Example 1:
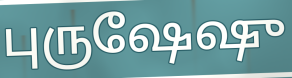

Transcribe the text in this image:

புருஷேஷு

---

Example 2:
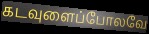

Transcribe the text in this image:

கடவுளைப்போலவே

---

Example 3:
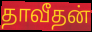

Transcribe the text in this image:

தாவீதன்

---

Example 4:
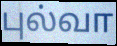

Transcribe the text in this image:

புல்வா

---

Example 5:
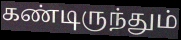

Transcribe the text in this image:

கண்டிருந்தும்